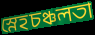
স্নেহচঞ্চলতা